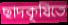
ছাদকৃষিতে